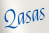
Qasas